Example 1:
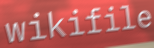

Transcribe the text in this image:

wikifile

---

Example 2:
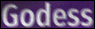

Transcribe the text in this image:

Godess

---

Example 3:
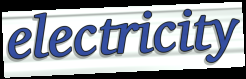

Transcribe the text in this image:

electricity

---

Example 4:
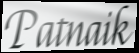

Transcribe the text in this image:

Patnaik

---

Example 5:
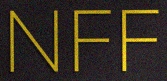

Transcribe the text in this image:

NFF